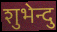
शुभेन्दु